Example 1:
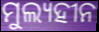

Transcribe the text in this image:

ମୁଲ୍ୟହୀନ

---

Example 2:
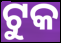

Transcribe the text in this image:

ଟୁକ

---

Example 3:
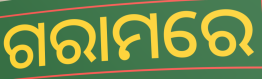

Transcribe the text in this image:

ଗରାମରେ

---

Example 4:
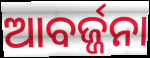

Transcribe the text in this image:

ଆବର୍ଜ୍ଜନା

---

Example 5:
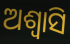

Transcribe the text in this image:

ଅଶ୍ୱାସି